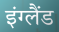
इंग्‍लैंड